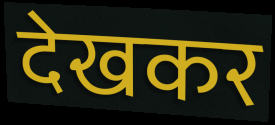
देखकर